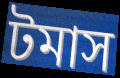
টমাস